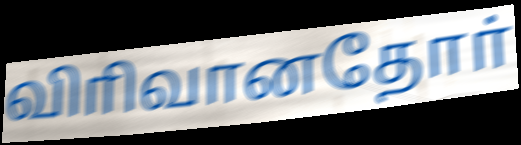
விரிவானதோர்